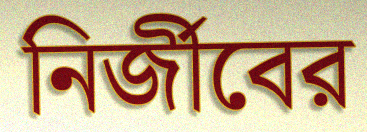
নির্জীবের